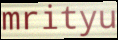
mrityu